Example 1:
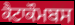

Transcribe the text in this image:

ਕੈਟਾਕੌਮਬਸ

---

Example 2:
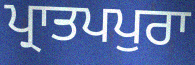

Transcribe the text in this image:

ਪ੍ਰਾਤਪਪੁਰਾ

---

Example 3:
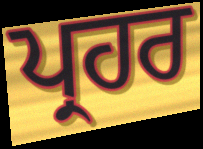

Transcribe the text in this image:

ਪ੍ਰਹਰ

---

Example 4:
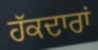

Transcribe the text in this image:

ਹੱਕਦਾਰਾਂ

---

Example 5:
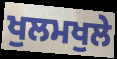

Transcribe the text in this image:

ਖੁਲਮਖੁਲੇ